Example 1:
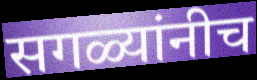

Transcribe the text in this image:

सगळ्यांनीच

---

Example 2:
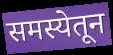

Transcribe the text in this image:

समस्येतून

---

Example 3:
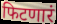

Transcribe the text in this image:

फिटणारं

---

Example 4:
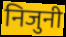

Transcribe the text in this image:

निजुनी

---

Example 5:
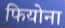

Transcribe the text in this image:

फियोना